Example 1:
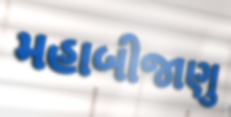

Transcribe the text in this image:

મહાબીજાણુ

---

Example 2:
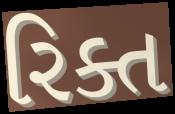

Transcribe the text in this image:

રિક્ત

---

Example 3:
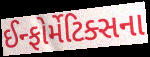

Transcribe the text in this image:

ઈન્ફોર્મેટિક્સના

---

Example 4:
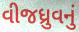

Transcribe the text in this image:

વીજધ્રુવનું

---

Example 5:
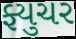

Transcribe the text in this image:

ફ્યુચર